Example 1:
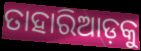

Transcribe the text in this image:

ତାହାରିଆଡ଼କୁ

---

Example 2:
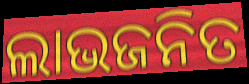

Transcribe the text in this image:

ଲାଭଜନିତ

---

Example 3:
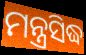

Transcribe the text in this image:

ମନ୍ତ୍ରସିଦ୍ଧ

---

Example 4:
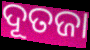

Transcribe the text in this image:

ଦୂତଜା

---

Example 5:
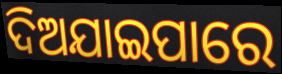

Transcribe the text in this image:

ଦିଅଯାଇପାରେ